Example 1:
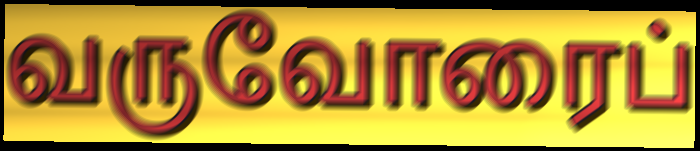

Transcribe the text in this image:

வருவோரைப்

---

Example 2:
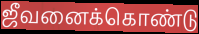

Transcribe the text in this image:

ஜீவனைக்கொண்டு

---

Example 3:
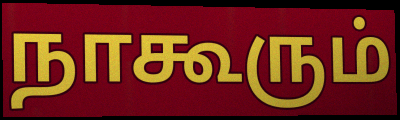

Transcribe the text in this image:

நாகூரும்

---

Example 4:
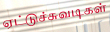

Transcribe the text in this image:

ஏட்டுச்சுவடிகள்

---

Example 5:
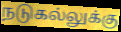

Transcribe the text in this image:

நடுகல்லுக்கு